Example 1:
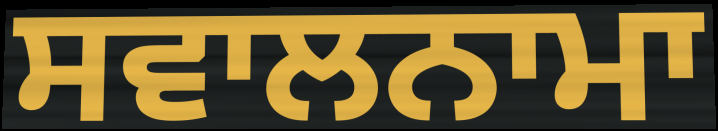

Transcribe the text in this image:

ਸਵਾਲਨਾਮਾ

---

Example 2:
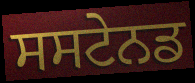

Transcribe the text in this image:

ਸਸਟੇਨਡ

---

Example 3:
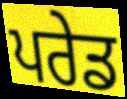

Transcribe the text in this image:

ਪਰੇਡ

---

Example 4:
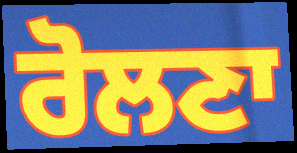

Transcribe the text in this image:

ਰੋਲਣਾ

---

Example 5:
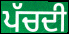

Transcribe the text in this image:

ਪੱਚਦੀ